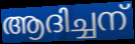
ആദിച്ചന്